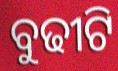
ବୁଢୀଟି